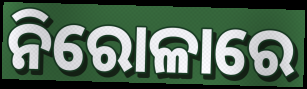
ନିରୋଳାରେ